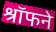
श्रॉफने